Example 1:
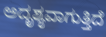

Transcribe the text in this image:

ಅದೃಶ್ಯವಾಗುತ್ತಿದೆ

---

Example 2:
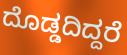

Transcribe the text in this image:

ದೊಡ್ಡದಿದ್ದರೆ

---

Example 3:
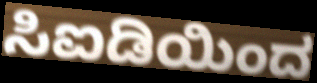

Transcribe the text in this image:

ಸಿಐಡಿಯಿಂದ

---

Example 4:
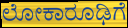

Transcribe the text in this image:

ಲೋಕಾರೂಢಿಗೆ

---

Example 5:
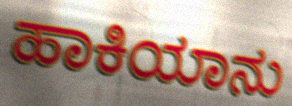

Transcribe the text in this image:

ಹಾಕಿಯಾನು